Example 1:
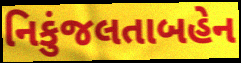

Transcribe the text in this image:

નિકુંજલતાબહેન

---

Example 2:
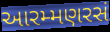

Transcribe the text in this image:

આરમ્મણરસં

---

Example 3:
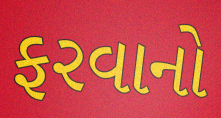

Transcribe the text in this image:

ફરવાનો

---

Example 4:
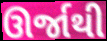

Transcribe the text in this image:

ઊર્જાથી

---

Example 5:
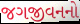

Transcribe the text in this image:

જગજીવનનો